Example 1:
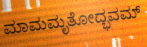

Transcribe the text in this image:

ಮಾಮಮೃತೋದ್ಭವಮ್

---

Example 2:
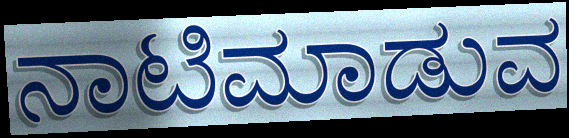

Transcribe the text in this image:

ನಾಟಿಮಾಡುವ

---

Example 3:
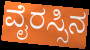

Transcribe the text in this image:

ವೈರಸ್ಸಿನ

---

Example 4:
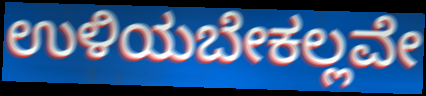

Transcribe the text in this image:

ಉಳಿಯಬೇಕಲ್ಲವೇ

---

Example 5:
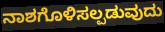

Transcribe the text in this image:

ನಾಶಗೊಳಿಸಲ್ಪಡುವುದು